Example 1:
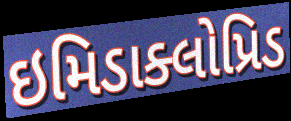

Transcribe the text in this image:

ઇમિડાક્લોપ્રિડ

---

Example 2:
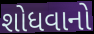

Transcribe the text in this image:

શોધવાનો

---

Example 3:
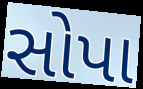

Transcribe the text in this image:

સોપા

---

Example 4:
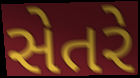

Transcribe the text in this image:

સેતરે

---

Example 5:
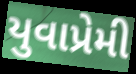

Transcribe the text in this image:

યુવાપ્રેમી